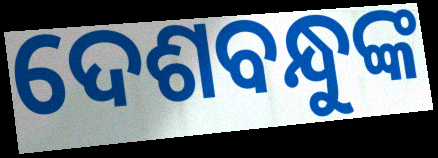
ଦେଶବନ୍ଧୁଙ୍କ